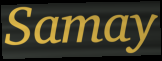
Samay